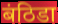
बंठिडा